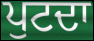
ਪੁਟਦਾ